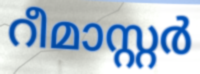
റീമാസ്റ്റർ